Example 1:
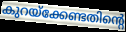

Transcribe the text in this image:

കുറയ്ക്കേണ്ടതിന്റെ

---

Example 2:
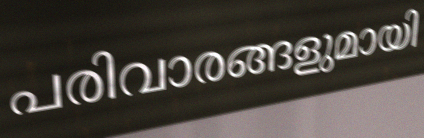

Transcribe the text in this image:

പരിവാരങ്ങളുമായി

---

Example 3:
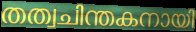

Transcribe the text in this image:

തത്വചിന്തകനായി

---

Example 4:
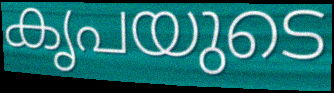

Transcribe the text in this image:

കൃപയുടെ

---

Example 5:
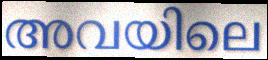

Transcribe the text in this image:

അവയിലെ